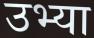
उभ्या